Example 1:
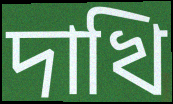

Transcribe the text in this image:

দাখি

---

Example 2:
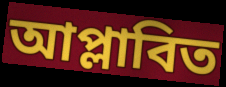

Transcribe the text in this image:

আপ্লাবিত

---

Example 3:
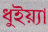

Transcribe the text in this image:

ধুইয়্যা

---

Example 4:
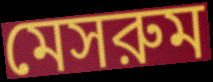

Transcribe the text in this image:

মেসরুম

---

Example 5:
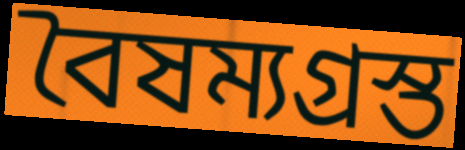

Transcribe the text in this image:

বৈষম্যগ্রস্ত